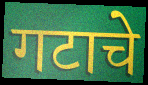
गटाचे